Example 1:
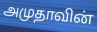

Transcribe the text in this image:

அமுதாவின்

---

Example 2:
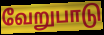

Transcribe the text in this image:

வேறுபாடு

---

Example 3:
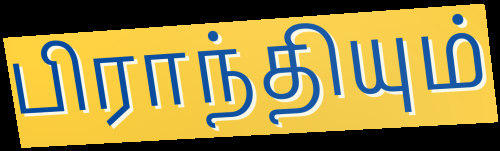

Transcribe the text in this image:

பிராந்தியும்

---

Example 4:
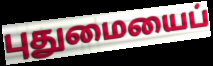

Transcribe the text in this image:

புதுமையைப்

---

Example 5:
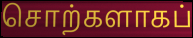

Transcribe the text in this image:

சொற்களாகப்